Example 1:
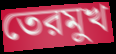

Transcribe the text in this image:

তেরমুখ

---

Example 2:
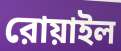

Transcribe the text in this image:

রোয়াইল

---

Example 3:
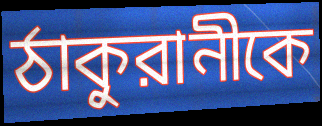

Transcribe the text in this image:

ঠাকুরানীকে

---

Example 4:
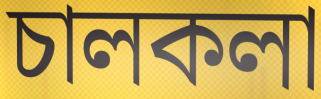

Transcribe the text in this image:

চালকলা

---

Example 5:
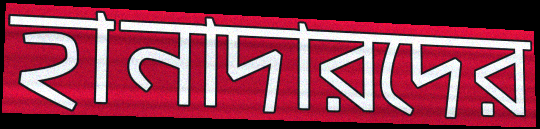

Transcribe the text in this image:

হানাদারদের